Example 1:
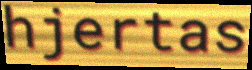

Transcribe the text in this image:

hjertas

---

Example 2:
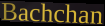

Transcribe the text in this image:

Bachchan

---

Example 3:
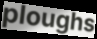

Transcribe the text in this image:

ploughs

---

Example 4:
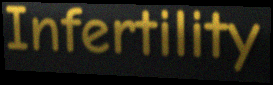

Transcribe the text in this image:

Infertility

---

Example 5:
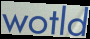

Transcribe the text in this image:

wotld